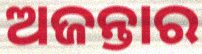
ଅଜନ୍ତାର